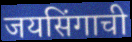
जयसिंगाची